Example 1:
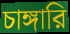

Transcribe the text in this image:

চাঙ্গারি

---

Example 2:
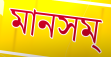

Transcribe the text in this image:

মানসম্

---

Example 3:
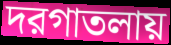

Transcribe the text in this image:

দরগাতলায়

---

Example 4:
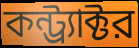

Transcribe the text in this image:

কন্ট্র্যাক্টর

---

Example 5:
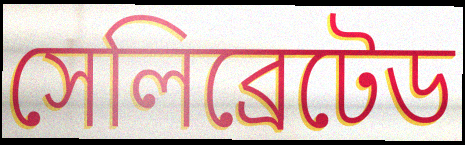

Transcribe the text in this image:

সেলিব্রেটেড